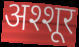
अश्शूर